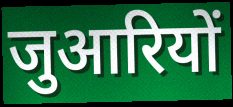
जुआरियों